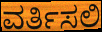
ವರ್ತಿಸಲಿ